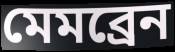
মেমব্ৰেন